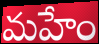
మహేం